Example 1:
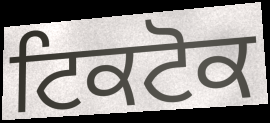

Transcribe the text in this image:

ਟਿਕਟੋਕ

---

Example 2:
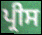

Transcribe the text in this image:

ਪ੍ਰੀਸ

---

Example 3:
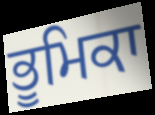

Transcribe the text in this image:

ਭੂਮਿਕਾ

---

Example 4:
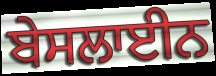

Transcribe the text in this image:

ਬੇਸਲਾਈਨ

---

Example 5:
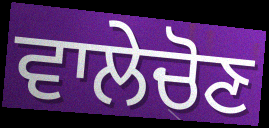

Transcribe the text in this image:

ਵਾਲੇਚੋਣ